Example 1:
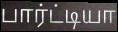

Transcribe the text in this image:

பார்ட்டியா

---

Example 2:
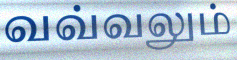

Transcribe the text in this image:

வவ்வலும்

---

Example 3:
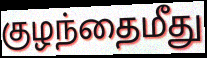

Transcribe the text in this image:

குழந்தைமீது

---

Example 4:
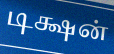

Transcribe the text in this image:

டிக்ஷன்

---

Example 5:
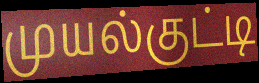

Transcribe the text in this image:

முயல்குட்டி